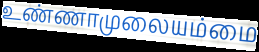
உண்ணாமுலையம்மை